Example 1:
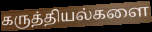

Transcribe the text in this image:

கருத்தியல்களை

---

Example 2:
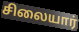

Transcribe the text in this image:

சிலையார்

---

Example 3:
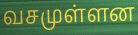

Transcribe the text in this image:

வசமுள்ளன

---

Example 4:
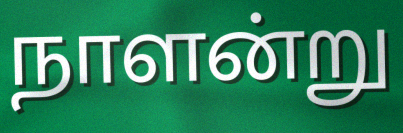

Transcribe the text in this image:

நாளன்று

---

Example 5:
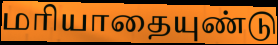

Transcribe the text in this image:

மரியாதையுண்டு